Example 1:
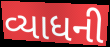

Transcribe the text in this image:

વ્યાધની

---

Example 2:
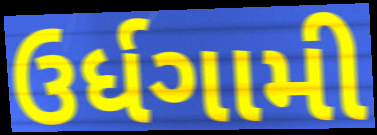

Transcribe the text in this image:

ઉર્ધગામી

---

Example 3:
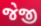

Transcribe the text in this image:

જેજી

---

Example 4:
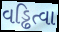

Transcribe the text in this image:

વડ્ઢિત્વા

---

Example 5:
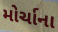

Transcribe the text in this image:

મોર્ચાના